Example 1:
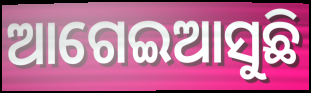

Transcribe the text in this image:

ଆଗେଇଆସୁଛି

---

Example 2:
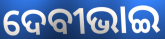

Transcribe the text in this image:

ଦେବୀଭାଇ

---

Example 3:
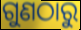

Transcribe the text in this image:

ଗୁଣଠାରୁ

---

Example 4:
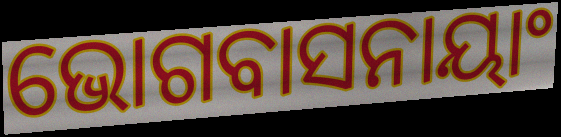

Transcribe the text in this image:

ଭୋଗବାସନାୟାଂ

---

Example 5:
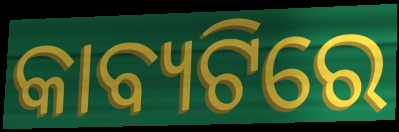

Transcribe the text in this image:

କାବ୍ୟଟିରେ